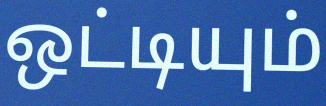
ஒட்டியும்